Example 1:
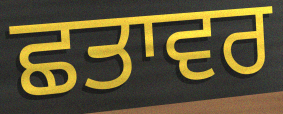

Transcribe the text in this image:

ਛਤਾਵਰ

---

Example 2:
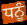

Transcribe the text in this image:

ਧਨੂੰ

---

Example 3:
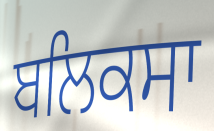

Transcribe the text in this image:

ਬਲਿਕਸਾ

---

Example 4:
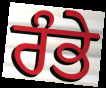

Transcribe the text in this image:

ਰੰਭੇ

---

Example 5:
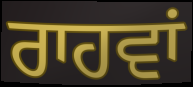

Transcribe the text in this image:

ਰਾਹਵਾਂ